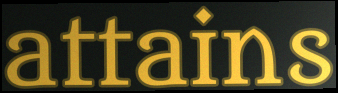
attains